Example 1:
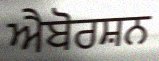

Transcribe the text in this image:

ਐਬੋਰਸ਼ਨ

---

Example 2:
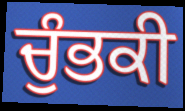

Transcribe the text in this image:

ਚੁੰਭਕੀ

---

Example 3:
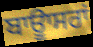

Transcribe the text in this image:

ਬਾਊਾਸਰਾਂ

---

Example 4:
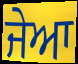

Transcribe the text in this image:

ਜੇਆ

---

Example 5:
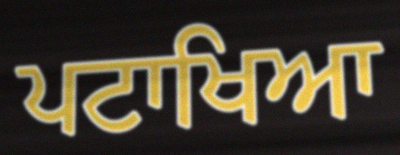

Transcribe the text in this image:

ਪਟਾਖਿਆ